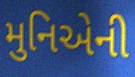
મુનિએની